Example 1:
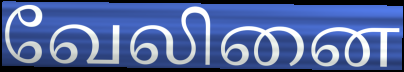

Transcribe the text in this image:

வேலினை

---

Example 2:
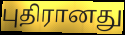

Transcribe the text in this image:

புதிரானது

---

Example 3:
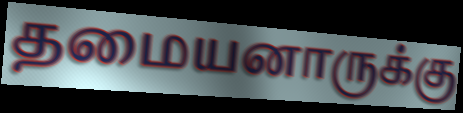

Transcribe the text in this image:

தமையனாருக்கு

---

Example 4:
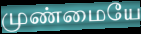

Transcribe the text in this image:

முண்மையே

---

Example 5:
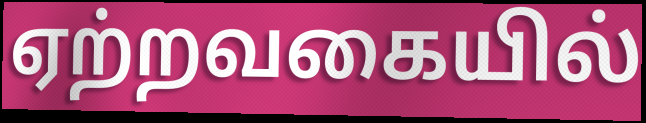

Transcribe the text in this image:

ஏற்றவகையில்